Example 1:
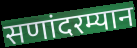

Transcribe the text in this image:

सणांदरम्यान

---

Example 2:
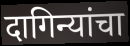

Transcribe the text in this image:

दागिन्यांचा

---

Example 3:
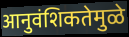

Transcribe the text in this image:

आनुवंशिकतेमुळे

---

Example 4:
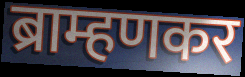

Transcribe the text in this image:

ब्राम्हणकर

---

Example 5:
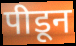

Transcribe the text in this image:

पीडून